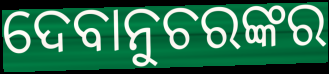
ଦେବାନୁଚରଙ୍କର